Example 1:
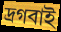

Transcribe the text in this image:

দ্রগবাই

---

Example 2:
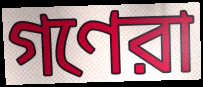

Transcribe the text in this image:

গণেরা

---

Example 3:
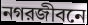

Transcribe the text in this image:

নগরজীবনে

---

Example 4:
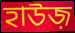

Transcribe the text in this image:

হাউজ়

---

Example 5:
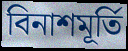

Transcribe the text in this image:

বিনাশমূর্তি